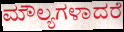
ಮೌಲ್ಯಗಳಾದರೆ